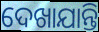
ଦେଖାଯାନ୍ତି